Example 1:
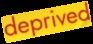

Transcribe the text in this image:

deprived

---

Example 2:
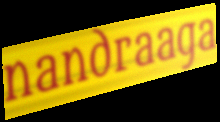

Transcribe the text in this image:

nandraaga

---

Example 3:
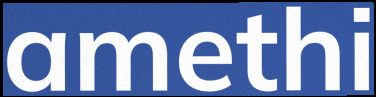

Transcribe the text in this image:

amethi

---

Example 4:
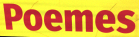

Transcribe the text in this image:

Poemes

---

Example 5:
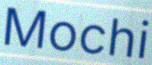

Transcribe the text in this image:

Mochi